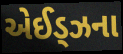
એઈડ્ઝના